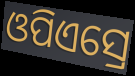
ଓପିଏସ୍ରେ